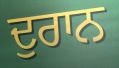
ਦੁਰਾਨ